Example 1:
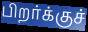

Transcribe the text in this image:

பிறர்க்குச்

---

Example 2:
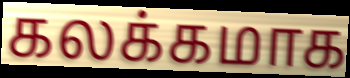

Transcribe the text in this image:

கலக்கமாக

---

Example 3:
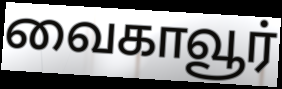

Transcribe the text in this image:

வைகாவூர்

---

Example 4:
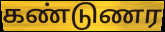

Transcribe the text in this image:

கண்டுணர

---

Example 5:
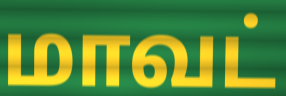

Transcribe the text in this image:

மாவட்